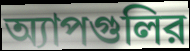
অ্যাপগুলির